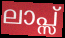
ലാപ്സ്